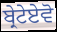
ਬ੍ਰੇਟੇਏਵੋ